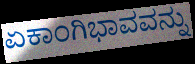
ಏಕಾಂಗಿಭಾವವನ್ನು